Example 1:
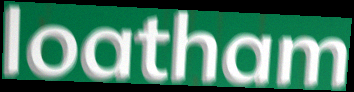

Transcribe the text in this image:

Ioatham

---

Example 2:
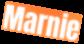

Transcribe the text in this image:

Marnie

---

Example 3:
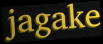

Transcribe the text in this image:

jagake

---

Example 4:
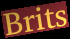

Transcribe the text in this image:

Brits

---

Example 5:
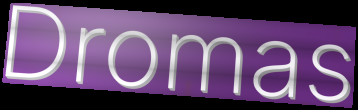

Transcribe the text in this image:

Dromas